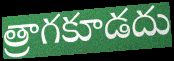
త్రాగకూడదు